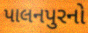
પાલનપુરનો